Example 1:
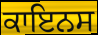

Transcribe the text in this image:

ਕਾਇਨਸ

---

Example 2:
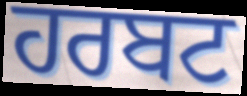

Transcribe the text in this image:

ਹਰਬਟ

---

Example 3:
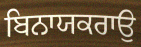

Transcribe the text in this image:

ਬਿਨਾਯਕਰਾਉ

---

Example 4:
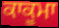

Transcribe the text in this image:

ਕਾਕੂਮਾ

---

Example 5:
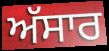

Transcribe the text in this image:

ਅੱਸਾਰ